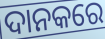
ଦାନକରେ